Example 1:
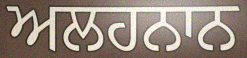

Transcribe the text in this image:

ਅਲਹਨਾਨ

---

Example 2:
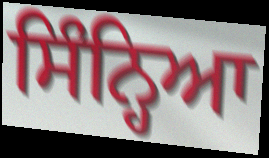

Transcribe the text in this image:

ਸਿੰਨ੍ਹਿਆ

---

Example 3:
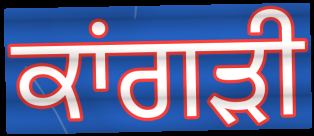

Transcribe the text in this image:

ਕਾਂਗੜੀ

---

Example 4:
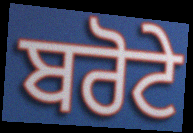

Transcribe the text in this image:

ਬਰੋਟੇ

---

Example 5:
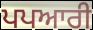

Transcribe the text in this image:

ਪਪਆਰੀ